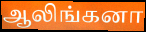
ஆலிங்கனா